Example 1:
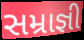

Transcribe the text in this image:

સમ્રાજ્ઞી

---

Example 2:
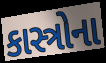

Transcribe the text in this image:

કાસ્ત્રોના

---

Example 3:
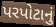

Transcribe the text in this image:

પરપોટાનું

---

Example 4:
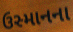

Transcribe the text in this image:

ઉસ્માનના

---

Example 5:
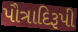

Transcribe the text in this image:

પૌત્રાદિરૂપી